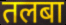
तलबा